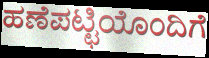
ಹಣೆಪಟ್ಟಿಯೊಂದಿಗೆ